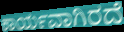
ಕಾರ್ಯವಾಗಿರದೆ